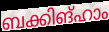
ബക്കിങ്ഹാം